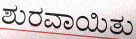
ಶುರವಾಯಿತು